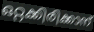
ഒറ്റക്കിരിക്കാന്